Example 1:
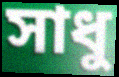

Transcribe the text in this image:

সাধু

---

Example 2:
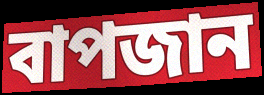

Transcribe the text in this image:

বাপজান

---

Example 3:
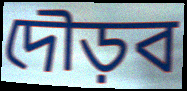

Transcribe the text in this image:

দৌড়ব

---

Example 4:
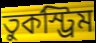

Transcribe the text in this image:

তুর্কস্ট্রিম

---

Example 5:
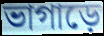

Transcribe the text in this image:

ভাগাড়ে